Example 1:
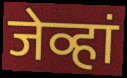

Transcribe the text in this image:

जेव्हां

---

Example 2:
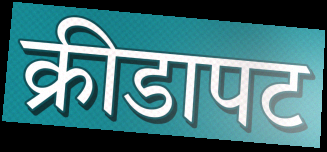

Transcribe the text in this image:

क्रीडापट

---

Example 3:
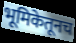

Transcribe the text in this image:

भूमिकेतूनच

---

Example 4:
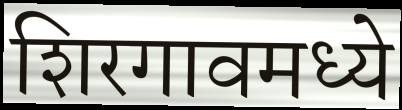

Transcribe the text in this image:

शिरगावमध्ये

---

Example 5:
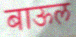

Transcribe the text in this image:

बाऊल